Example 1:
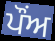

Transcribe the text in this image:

ਪੌਂਅ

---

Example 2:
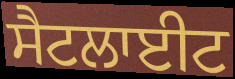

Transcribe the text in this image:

ਸੈਟਲਾਈਟ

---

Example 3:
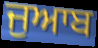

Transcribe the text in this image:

ਜੁਆਬ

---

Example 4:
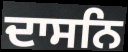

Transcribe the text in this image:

ਦਾਸਨਿ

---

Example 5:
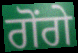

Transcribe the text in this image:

ਗੋਂਗੇ